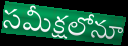
సమీక్షలోనూ